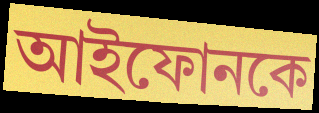
আইফোনকে